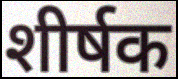
शीर्षक